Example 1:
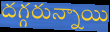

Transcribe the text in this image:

దగ్గరున్నాయి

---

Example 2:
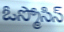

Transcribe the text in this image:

ఓస్మోసిస్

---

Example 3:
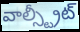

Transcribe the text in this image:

వాల్స్ట్రీట్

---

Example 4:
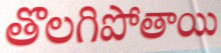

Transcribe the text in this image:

తొలగిపోతాయి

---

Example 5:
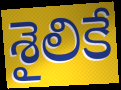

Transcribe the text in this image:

శైలికే